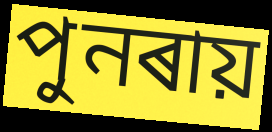
পুনৰায়